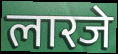
लारजे